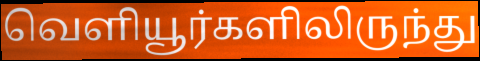
வெளியூர்களிலிருந்து